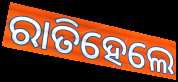
ରାତିହେଲେ